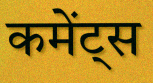
कमेंट्स